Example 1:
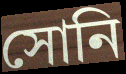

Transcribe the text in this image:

সোনি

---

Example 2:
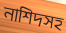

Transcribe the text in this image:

নাশিদসহ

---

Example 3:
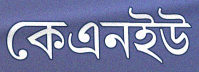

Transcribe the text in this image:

কেএনইউ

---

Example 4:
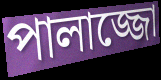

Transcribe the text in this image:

পালাজ্জো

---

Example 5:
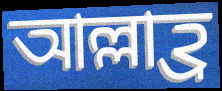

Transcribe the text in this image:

আল্লাহ্র